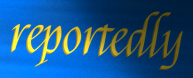
reportedly